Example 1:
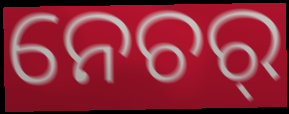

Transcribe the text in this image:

ନେଚର୍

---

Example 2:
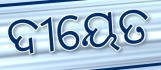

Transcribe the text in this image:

ଦୀୟେତ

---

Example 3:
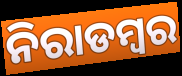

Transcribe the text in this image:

ନିରାଡମ୍ବର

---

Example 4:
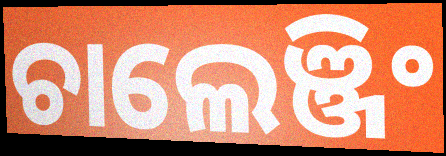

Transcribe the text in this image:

ଚାଲେଞ୍ଜିଂ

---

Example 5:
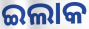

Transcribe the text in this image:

ଇଲାକ